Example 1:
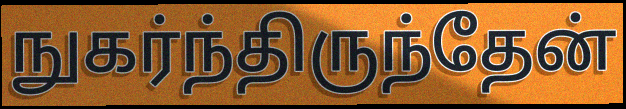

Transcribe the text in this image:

நுகர்ந்திருந்தேன்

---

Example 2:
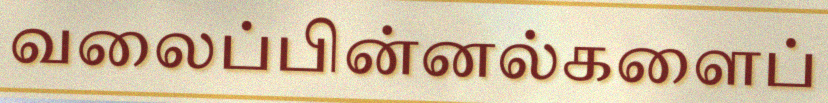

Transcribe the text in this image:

வலைப்பின்னல்களைப்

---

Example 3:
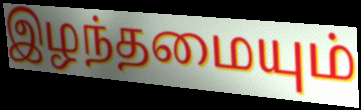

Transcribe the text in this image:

இழந்தமையும்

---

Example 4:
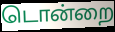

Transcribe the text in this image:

டொன்றை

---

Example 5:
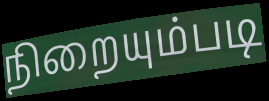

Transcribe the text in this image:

நிறையும்படி